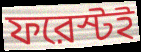
ফরেস্টই